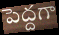
పెద్దగా